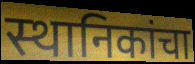
स्थानिकांचा